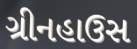
ગ્રીનહાઉસ